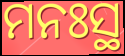
ମନଃସ୍ଥ